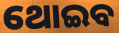
ଥୋଇବ